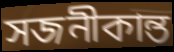
সজনীকান্ত